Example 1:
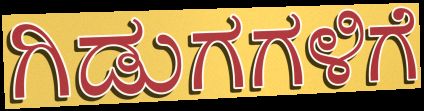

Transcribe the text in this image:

ಗಿಡುಗಗಳಿಗೆ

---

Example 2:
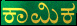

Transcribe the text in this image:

ಕಾಮಿಕ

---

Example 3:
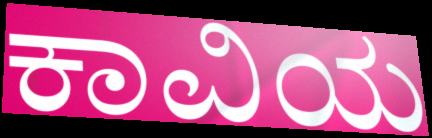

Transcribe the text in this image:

ಕಾವಿಯ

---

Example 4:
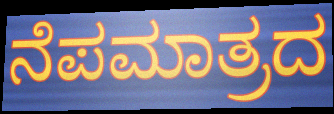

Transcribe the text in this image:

ನೆಪಮಾತ್ರದ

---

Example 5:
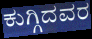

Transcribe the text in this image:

ಕುಗ್ಗಿದವರ